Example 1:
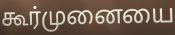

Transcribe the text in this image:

கூர்முனையை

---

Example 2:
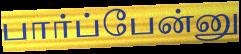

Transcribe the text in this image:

பார்ப்பேன்னு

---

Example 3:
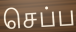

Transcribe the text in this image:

செப்ப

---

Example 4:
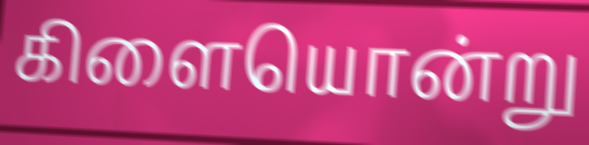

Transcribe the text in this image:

கிளையொன்று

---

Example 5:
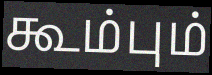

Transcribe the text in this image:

கூம்பும்